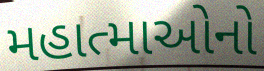
મહાત્માઓનો